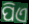
ପିଏ